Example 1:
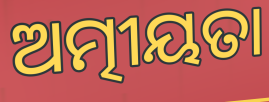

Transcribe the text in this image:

ଅତ୍ମୀୟତା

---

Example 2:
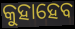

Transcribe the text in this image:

କୁହାହେବ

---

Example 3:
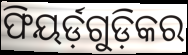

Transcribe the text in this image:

ଫିୟର୍ଡ଼ଗୁଡ଼ିକର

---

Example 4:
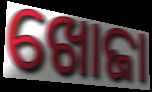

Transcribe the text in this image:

ଖୋଜା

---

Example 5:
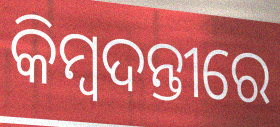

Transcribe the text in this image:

କିମ୍ବଦନ୍ତୀରେ